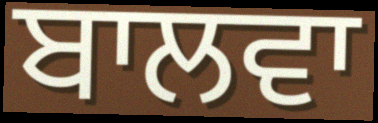
ਬਾਲਵਾ